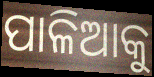
ପାଳିଆକୁ